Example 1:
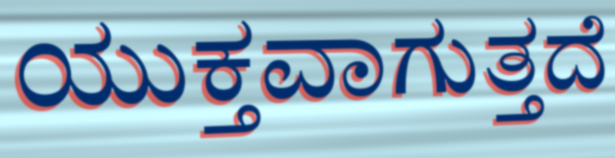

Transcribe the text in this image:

ಯುಕ್ತವಾಗುತ್ತದೆ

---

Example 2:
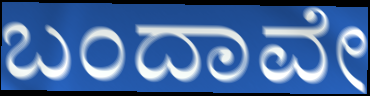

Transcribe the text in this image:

ಬಂದಾವೇ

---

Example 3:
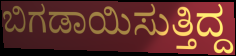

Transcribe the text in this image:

ಬಿಗಡಾಯಿಸುತ್ತಿದ್ದ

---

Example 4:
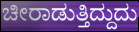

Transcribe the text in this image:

ಚೀರಾಡುತ್ತಿದ್ದುದು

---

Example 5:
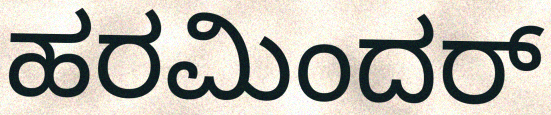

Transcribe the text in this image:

ಹರಮಿಂದರ್